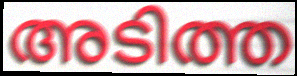
അടിത്ത